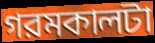
গরমকালটা